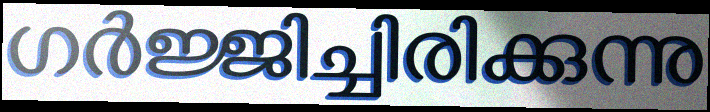
ഗർജ്ജിച്ചിരിക്കുന്നു